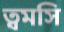
ত্বমসি